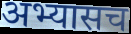
अभ्यासच